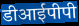
डीआईपीपी